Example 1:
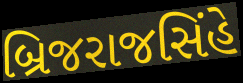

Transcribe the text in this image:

બ્રિજરાજસિંહે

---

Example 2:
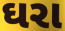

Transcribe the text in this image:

ઘરા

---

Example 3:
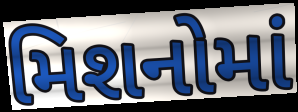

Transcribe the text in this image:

મિશનોમાં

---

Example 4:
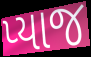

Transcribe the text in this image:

પ્યાજ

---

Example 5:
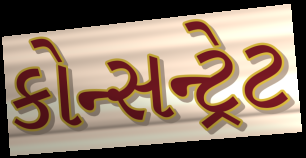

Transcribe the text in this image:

કોન્સન્ટ્રેટ